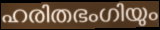
ഹരിതഭംഗിയും